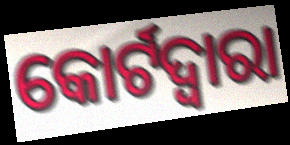
କୋର୍ଟଦ୍ୱାରା